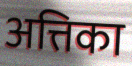
अत्तिका